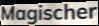
Magischer